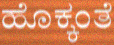
ಹೊಕ್ಕಂತೆ